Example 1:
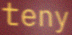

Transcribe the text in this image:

teny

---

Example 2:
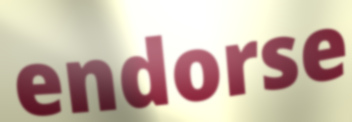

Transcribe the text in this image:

endorse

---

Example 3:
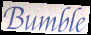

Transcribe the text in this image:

Bumble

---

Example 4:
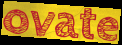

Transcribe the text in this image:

ovate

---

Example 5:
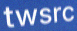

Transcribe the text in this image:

twsrc